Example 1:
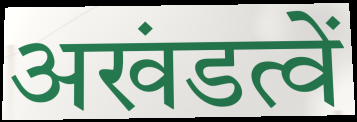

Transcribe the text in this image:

अखंडत्वें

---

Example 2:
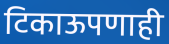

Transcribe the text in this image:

टिकाऊपणाही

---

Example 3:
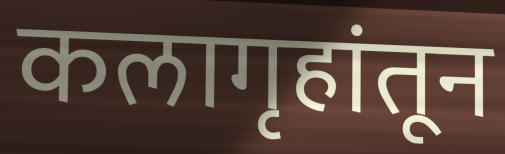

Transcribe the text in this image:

कलागृहांतून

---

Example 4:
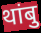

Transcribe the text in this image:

थांबु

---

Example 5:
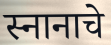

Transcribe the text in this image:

स्नानाचे